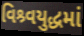
વિશ્ર્વયુદ્ધમાં